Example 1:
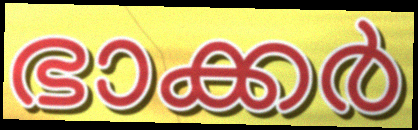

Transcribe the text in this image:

ഭാക്കർ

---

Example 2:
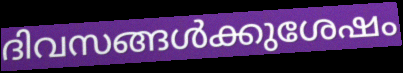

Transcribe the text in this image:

ദിവസങ്ങൾക്കുശേഷം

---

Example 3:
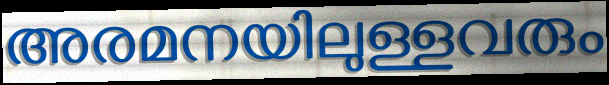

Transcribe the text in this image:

അരമനയിലുള്ളവരും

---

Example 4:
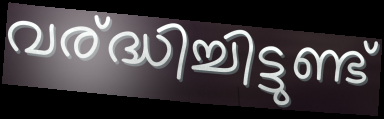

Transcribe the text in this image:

വര്ദ്ധിച്ചിട്ടുണ്ട്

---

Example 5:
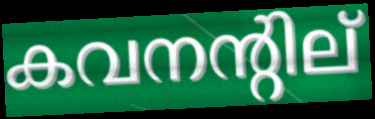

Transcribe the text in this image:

കവനന്റില്